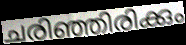
ചരിഞ്ഞിരിക്കും